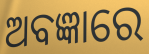
ଅବଜ୍ଞାରେ